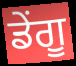
ਡੇਂਗੂ